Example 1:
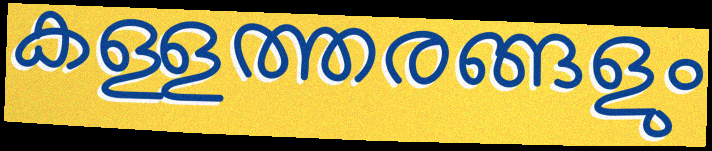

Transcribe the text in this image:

കള്ളത്തരങ്ങളും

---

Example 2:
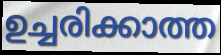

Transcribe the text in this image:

ഉച്ചരിക്കാത്ത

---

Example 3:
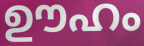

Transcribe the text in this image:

ഊഹം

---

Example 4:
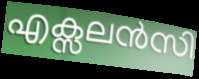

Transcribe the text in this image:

എക്സലൻസി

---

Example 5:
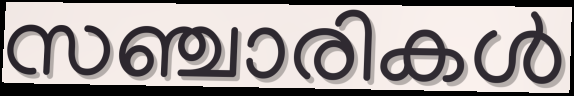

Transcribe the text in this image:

സഞ്ചാരികൾ